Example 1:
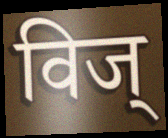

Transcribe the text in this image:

विज्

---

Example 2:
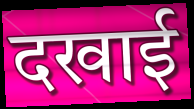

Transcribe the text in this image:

दखाई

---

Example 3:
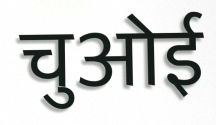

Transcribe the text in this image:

चुओई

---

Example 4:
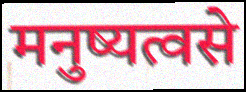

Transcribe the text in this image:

मनुष्यत्वसे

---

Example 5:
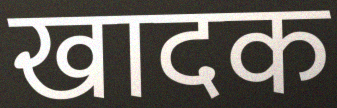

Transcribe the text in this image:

खादक